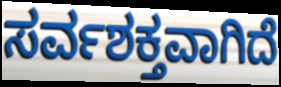
ಸರ್ವಶಕ್ತವಾಗಿದೆ